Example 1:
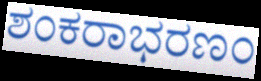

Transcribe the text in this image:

ಶಂಕರಾಭರಣಂ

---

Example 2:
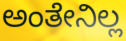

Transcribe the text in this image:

ಅಂತೇನಿಲ್ಲ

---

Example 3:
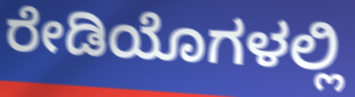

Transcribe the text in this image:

ರೇಡಿಯೊಗಳಲ್ಲಿ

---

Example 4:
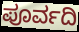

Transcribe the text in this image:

ಪೂರ್ವದಿ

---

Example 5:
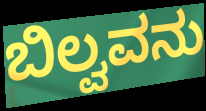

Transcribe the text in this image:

ಬಿಲ್ವವನು